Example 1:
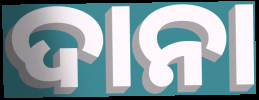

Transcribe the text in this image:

ଦାନା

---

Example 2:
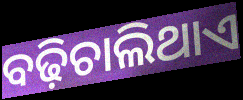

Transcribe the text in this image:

ବଢ଼ିଚାଲିଥାଏ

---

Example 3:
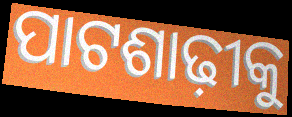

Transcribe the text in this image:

ପାଟଶାଢ଼ୀକୁ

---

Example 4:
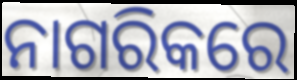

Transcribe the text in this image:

ନାଗରିକରେ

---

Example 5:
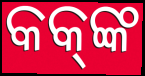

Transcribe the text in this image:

କକ୍‌ଙ୍କ